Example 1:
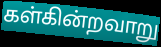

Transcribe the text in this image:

கள்கின்றவாறு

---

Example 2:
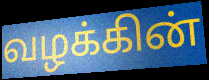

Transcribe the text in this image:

வழக்கின்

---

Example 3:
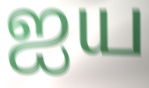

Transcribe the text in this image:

ஐய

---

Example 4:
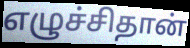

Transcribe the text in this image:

எழுச்சிதான்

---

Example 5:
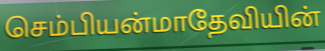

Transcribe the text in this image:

செம்பியன்மாதேவியின்